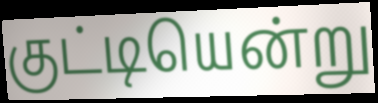
குட்டியென்று